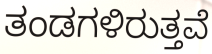
ತಂಡಗಳಿರುತ್ತವೆ